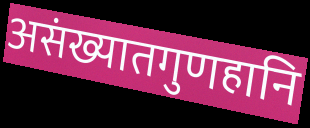
असंख्यातगुणहानि